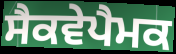
ਸੈਕਵੇਪੈਮਕ